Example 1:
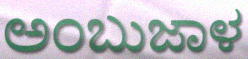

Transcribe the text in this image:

ಅಂಬುಜಾಳ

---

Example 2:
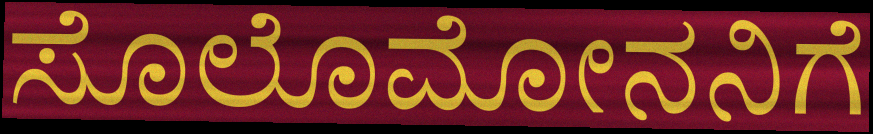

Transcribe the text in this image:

ಸೊಲೊಮೋನನಿಗೆ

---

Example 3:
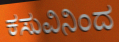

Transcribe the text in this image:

ಕಸುವಿನಿಂದ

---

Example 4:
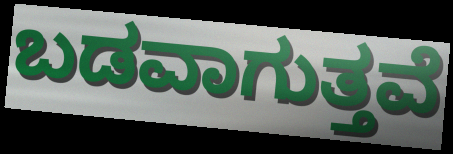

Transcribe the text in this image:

ಬಡವಾಗುತ್ತವೆ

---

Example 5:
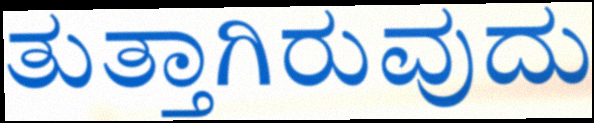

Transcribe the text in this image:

ತುತ್ತಾಗಿರುವುದು